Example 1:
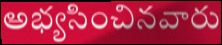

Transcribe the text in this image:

అభ్యసించినవారు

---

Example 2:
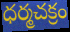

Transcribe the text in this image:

ధర్మచక్రం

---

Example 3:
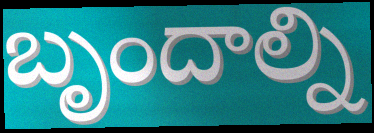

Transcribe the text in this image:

బృందాల్ని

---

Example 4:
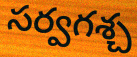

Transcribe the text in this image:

సర్వగశ్చ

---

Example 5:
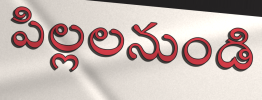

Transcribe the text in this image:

పిల్లలనుండి